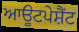
ਆਊਟਪੇਸ਼ੈਂਟ